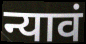
न्यावं